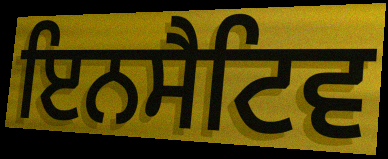
ਇਨਸੈਟਿਵ